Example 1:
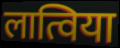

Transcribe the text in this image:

लात्विया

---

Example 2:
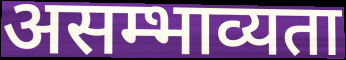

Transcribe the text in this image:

असम्भाव्यता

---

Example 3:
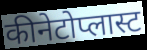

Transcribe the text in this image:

कीनेटोप्लास्ट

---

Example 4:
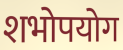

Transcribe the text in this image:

शभोपयोग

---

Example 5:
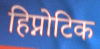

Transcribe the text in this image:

हिप्नोटिक